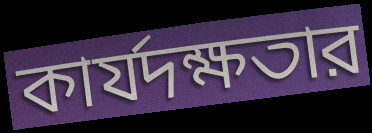
কার্যদক্ষতার